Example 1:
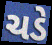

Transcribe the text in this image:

ચડે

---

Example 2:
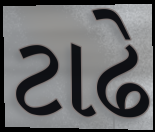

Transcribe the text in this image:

ટાઢે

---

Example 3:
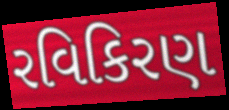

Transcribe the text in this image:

રવિકિરણ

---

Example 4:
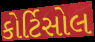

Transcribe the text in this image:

કોર્ટિસોલ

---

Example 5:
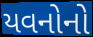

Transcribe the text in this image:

યવનોનો